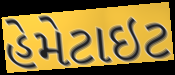
હેમેટાઇટ